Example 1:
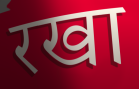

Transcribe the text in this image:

रखा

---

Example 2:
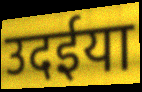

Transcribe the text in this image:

उदईया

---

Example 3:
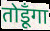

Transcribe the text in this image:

तोडूँगा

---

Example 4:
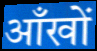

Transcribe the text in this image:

आँखों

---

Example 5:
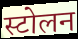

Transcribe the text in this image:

स्टोलन